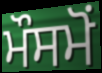
ਮੌਸਮੋਂ